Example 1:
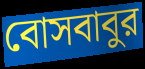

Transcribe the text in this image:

বোসবাবুর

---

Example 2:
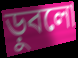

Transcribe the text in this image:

ড়ুবলো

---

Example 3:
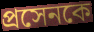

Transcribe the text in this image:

প্রসেনকে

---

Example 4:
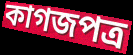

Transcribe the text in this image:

কাগজপত্র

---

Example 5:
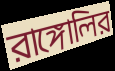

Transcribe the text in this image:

রাঙ্গোলির